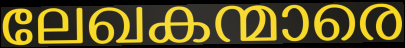
ലേഖകന്മാരെ